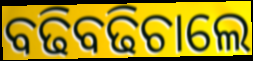
ବଢିବଢିଚାଲେ